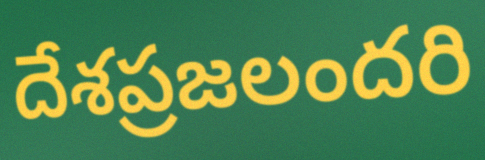
దేశప్రజలందరి